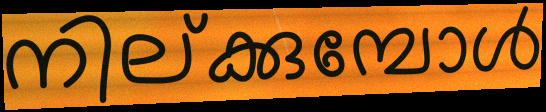
നില്ക്കുമ്പോൾ